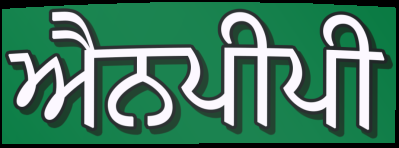
ਐਨਪੀਪੀ